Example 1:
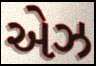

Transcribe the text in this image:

એઝ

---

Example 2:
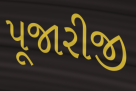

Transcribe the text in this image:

પૂજારીજી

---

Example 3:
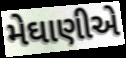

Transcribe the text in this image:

મેઘાણીએ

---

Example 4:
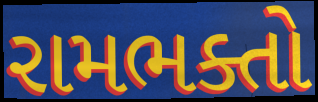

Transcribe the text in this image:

રામભક્તો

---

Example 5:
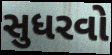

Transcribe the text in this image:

સુધરવો